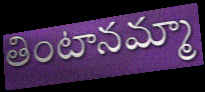
తింటానమ్మా